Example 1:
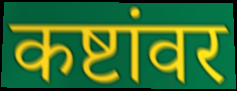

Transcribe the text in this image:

कष्टांवर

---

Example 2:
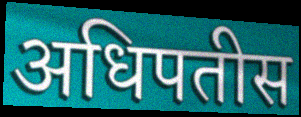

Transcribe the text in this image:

अधिपतीस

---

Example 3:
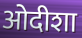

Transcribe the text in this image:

ओदीशा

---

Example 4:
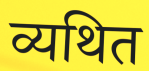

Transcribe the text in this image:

व्यथित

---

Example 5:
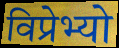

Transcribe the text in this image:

विप्रेभ्यो